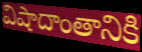
విషాదాంతానికి